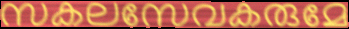
സകലസേവകരുമേ